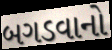
બગડવાનો